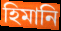
হিমানি